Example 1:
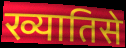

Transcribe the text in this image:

ख्यातिसे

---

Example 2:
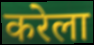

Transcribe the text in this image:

करेला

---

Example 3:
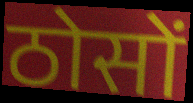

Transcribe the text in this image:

ठोसों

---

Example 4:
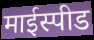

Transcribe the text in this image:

माईस्पीड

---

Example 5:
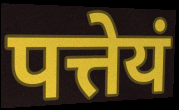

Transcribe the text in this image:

पत्तेयं